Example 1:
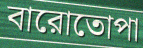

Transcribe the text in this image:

বারোতোপা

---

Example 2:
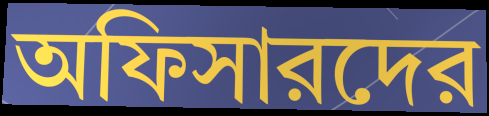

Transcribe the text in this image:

অফিসারদের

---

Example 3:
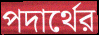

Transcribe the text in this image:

পদার্থের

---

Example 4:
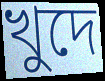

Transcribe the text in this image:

খুদে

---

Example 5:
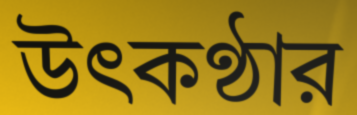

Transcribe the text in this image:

উৎকণ্ঠার